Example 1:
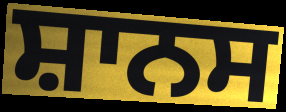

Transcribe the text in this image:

ਸ਼ਾਨਸ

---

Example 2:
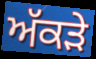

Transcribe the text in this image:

ਅੱਕੜੇ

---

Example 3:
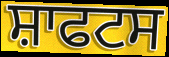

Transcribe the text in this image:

ਸ਼ਾਫਟਸ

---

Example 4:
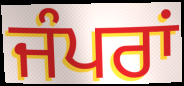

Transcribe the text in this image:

ਜੰਪਰਾਂ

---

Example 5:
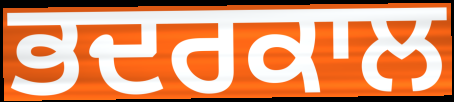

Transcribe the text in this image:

ਭਦਰਕਾਲ